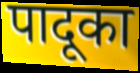
पादूका